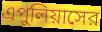
এপুলিয়াসের